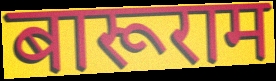
बारूराम